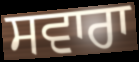
ਸਵਾਰਾ